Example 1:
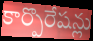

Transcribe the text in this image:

కార్పొరేషన్లు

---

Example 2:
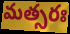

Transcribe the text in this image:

మత్సరః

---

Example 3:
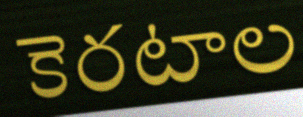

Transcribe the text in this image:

కెరటాల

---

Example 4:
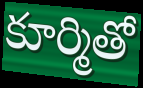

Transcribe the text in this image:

కూర్మితో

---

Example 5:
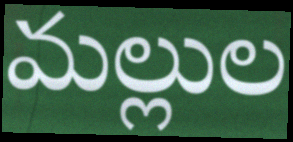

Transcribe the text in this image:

మల్లుల